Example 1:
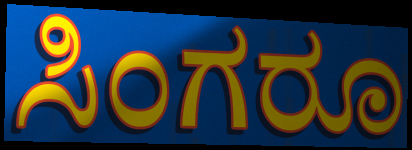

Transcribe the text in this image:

ಸಿಂಗರೂ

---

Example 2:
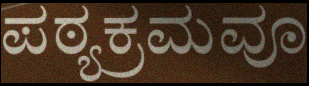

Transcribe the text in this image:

ಪಠ್ಯಕ್ರಮವೂ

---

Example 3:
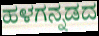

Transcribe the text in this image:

ಹಳಗನ್ನಡದ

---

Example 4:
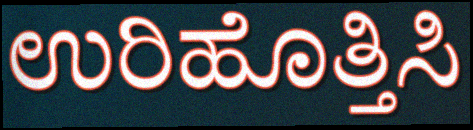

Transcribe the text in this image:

ಉರಿಹೊತ್ತಿಸಿ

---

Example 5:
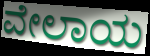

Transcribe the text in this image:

ವೇಲಾಯ